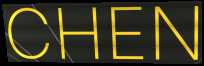
CHEN